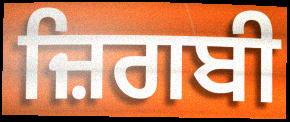
ਜ਼ਿਗਬੀ